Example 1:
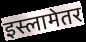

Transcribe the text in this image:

इस्लामेतर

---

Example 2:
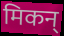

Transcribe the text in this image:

मिकन्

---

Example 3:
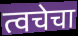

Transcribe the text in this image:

त्वचेचा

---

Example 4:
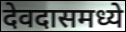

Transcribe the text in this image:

देवदासमध्ये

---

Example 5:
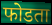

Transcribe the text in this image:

फोडता